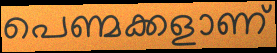
പെണ്മക്കളാണ്